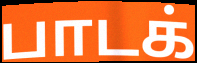
பாடக்